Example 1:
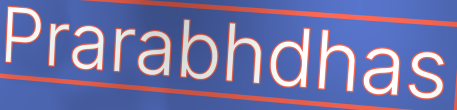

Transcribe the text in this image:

Prarabhdhas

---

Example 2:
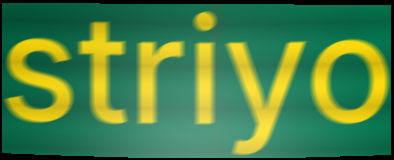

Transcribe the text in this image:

striyo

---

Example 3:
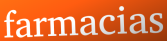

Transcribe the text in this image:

farmacias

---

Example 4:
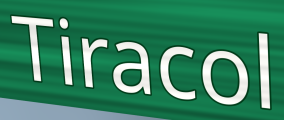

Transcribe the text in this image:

Tiracol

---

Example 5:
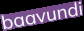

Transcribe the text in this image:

baavundi